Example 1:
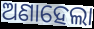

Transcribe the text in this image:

ଅଣାହେଲା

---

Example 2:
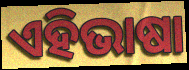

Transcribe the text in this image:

ଏହିଭାଷା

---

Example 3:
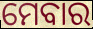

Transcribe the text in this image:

ମେବାର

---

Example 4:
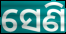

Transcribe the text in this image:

ସେଣି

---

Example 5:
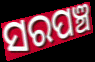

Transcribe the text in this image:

ସରପଞ୍ଚ